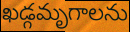
ఖడ్గమృగాలను